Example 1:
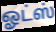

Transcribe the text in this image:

ஓட்ஸ்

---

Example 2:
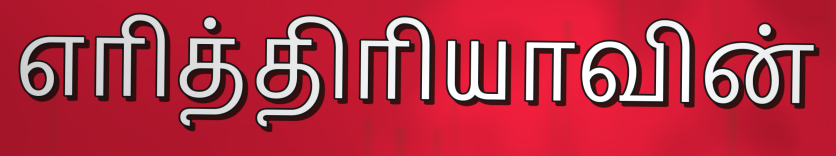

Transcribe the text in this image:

எரித்திரியாவின்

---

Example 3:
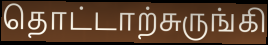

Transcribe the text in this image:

தொட்டாற்சுருங்கி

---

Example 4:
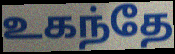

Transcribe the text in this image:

உகந்தே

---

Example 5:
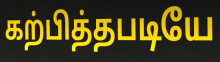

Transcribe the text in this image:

கற்பித்தபடியே